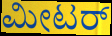
ಮೀಟರ್